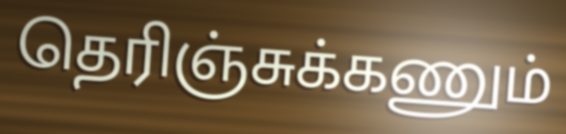
தெரிஞ்சுக்கணும்